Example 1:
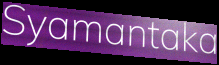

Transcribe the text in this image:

Syamantaka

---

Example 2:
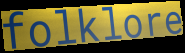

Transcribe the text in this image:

folklore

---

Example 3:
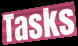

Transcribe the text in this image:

Tasks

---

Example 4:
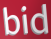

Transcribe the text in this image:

bid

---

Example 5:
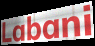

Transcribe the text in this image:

Labani